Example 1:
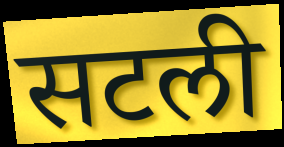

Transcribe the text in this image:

सटली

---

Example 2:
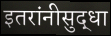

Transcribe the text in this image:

इतरांनीसुद्धा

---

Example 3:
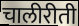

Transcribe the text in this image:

चालीरीती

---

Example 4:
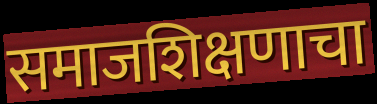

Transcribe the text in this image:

समाजशिक्षणाचा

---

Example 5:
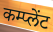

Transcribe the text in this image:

कम्प्लेंट